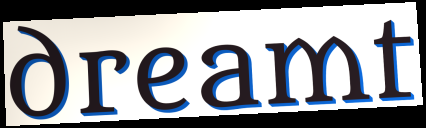
dreamt